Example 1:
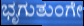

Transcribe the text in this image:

ಭೃಗುತುಂಗೇ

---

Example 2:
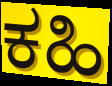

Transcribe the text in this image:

ಕಹಿ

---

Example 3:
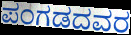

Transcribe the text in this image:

ಪಂಗಡದವರ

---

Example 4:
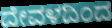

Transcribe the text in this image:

ದೇವಳದಿಂದ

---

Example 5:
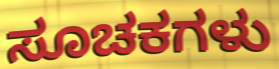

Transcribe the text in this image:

ಸೂಚಕಗಳು